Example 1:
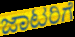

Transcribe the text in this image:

ಜಾಟರಿಗೆ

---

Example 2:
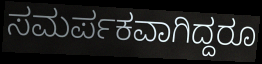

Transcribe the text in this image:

ಸಮರ್ಪಕವಾಗಿದ್ದರೂ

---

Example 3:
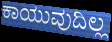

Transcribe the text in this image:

ಕಾಯುವುದಿಲ್ಲ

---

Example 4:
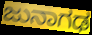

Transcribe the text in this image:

ಜುನಾಗಢ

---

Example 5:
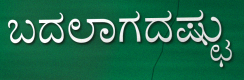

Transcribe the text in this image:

ಬದಲಾಗದಷ್ಟು